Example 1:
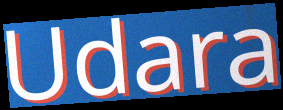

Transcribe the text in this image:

Udara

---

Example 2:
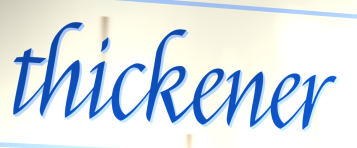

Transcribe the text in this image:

thickener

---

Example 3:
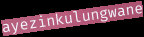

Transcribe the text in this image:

ayezinkulungwane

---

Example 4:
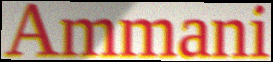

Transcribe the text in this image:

Ammani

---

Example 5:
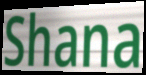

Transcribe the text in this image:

Shana